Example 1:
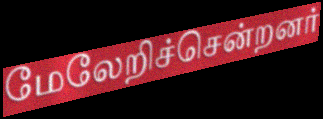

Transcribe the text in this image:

மேலேறிச்சென்றனர்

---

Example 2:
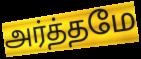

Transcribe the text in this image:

அர்த்தமே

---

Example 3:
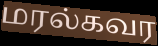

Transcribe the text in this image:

மரல்கவர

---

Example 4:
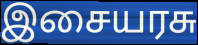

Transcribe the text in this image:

இசையரசு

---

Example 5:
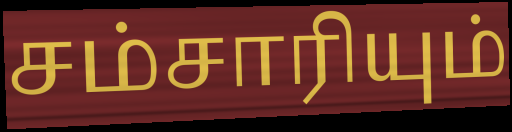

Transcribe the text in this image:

சம்சாரியும்